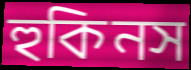
হুকিনস